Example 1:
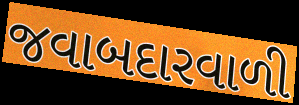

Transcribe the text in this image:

જવાબદારવાળી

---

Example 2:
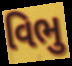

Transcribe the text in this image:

વિભુ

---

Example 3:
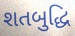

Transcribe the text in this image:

શતબુદ્ધિ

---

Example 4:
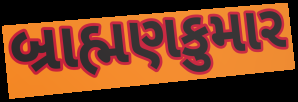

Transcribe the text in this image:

બ્રાહ્મણકુમાર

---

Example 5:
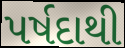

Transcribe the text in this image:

પર્ષદાથી